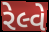
રેલ્વે